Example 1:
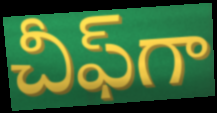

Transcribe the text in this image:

చీఫ్‌గా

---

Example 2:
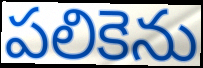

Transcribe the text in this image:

పలికెను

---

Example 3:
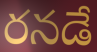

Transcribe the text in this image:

రనడే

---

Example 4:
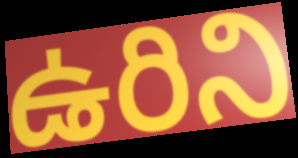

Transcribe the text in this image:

ఉరిని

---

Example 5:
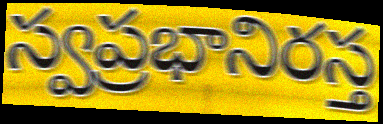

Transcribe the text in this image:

స్వప్రభానిరస్త